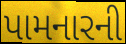
પામનારની